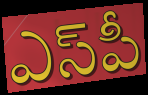
ఎస్‌పీ